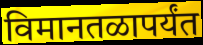
विमानतळापर्यंत